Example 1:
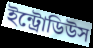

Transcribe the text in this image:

ইন্ট্রোডিউস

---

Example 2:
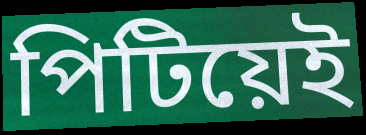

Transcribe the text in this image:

পিটিয়েই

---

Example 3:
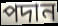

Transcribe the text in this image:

পদান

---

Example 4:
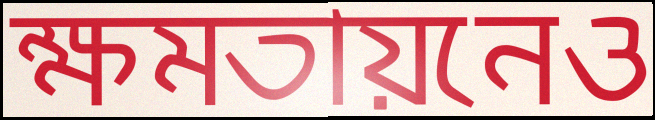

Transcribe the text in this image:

ক্ষমতায়নেও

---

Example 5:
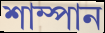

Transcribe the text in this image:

শাম্পান